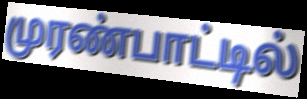
முரண்பாட்டில்